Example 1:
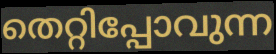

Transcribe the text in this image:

തെറ്റിപ്പോവുന്ന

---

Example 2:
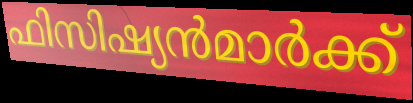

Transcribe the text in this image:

ഫിസിഷ്യൻമാർക്ക്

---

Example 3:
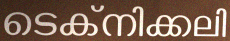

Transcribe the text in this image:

ടെക്‌നിക്കലി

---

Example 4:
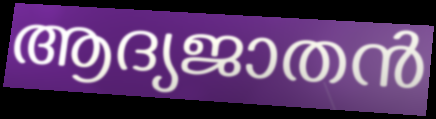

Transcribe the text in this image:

ആദ്യജാതൻ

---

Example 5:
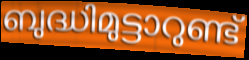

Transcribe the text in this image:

ബുദ്ധിമുട്ടാറുണ്ട്